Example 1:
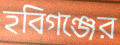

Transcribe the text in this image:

হবিগঞ্জের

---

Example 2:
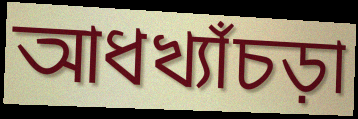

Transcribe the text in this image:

আধখ্যাঁচড়া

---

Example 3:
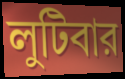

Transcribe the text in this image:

লুটিবার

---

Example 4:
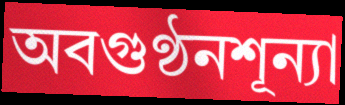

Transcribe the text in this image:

অবগুণ্ঠনশূন্যা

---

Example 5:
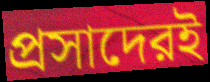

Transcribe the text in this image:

প্রসাদেরই